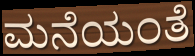
ಮನೆಯಂತೆ